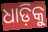
ଧାଡ଼ିକୁ